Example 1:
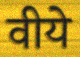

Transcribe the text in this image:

वीये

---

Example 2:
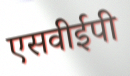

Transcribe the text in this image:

एसवीईपी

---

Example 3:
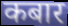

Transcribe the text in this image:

कबार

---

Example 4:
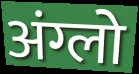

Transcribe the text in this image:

अंग्लो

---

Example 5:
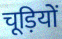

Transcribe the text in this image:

चूड़ियों